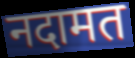
नदामत